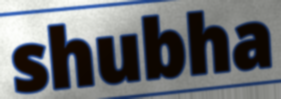
shubha